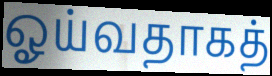
ஓய்வதாகத்